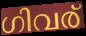
ഗിവര്